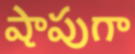
షాపుగా